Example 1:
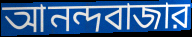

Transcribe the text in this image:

আনন্দবাজার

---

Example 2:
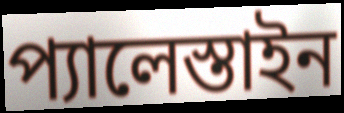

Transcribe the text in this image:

প্যালেস্তাইন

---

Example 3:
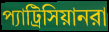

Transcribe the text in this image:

প্যাট্রিসিয়ানরা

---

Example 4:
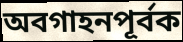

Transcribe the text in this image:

অবগাহনপূর্বক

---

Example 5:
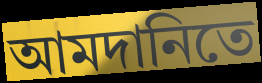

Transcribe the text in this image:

আমদানিতে